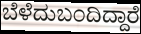
ಬೆಳೆದುಬಂದಿದ್ದಾರೆ